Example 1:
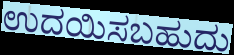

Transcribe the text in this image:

ಉದಯಿಸಬಹುದು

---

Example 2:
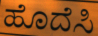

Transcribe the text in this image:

ಹೊದೆಸಿ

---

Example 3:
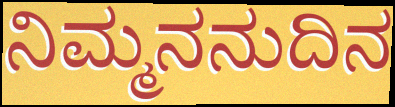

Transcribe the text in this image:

ನಿಮ್ಮನನುದಿನ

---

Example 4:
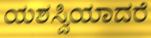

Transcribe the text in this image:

ಯಶಸ್ವಿಯಾದರೆ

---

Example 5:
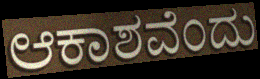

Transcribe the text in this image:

ಆಕಾಶವೆಂದು